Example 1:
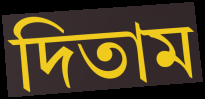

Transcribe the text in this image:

দিতাম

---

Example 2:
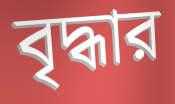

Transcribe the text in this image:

বৃদ্ধার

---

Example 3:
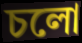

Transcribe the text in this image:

চলো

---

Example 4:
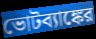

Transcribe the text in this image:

ভোটব্যাঙ্কের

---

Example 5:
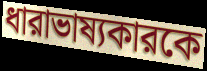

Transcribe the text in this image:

ধারাভাষ্যকারকে